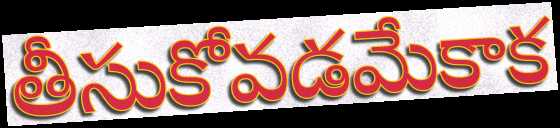
తీసుకోవడమేకాక